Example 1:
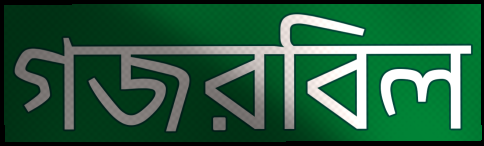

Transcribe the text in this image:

গজরবিল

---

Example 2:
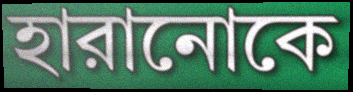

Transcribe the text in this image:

হারানোকে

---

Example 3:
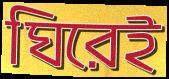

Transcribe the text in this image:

ঘিরেই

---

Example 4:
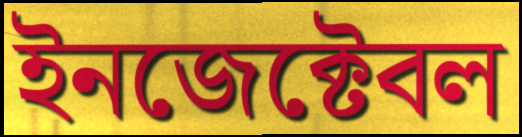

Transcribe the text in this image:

ইনজেক্টেবল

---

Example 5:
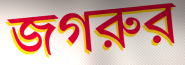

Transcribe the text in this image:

জগরুর